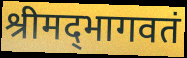
श्रीमद्‌भागवतं